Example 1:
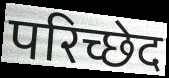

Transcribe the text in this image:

परिच्छेद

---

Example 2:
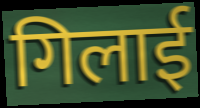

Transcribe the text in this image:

गिलाई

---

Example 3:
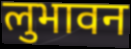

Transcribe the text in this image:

लुभावन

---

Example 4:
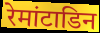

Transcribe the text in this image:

रेमांटाडिन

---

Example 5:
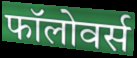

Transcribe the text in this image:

फॉलोवर्स